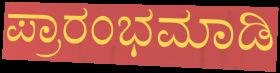
ಪ್ರಾರಂಭಮಾಡಿ